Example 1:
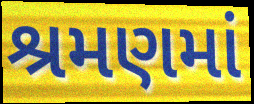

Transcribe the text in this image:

શ્રમણમાં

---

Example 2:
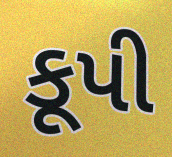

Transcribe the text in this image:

કૂપી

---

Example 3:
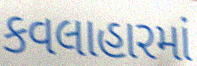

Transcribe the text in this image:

કવલાહારમાં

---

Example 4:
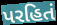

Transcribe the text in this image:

પરહિતં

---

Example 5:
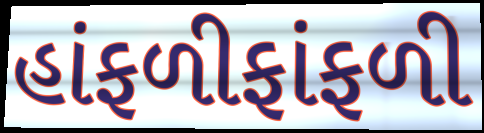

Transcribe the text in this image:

હાંફળીફાંફળી